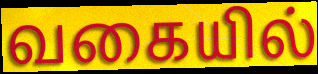
வகையில்